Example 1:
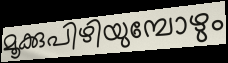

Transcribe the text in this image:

മൂക്കുപിഴിയുമ്പോഴും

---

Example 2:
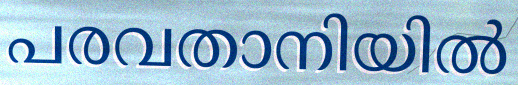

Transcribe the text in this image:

പരവതാനിയിൽ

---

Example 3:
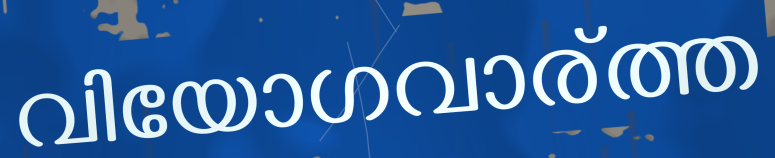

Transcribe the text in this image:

വിയോഗവാര്ത്ത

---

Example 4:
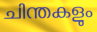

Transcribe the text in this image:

ചിന്തകളും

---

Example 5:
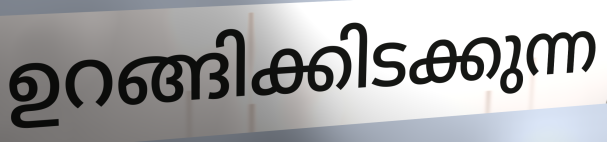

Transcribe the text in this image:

ഉറങ്ങിക്കിടക്കുന്ന